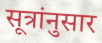
सूत्रांनुसार